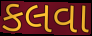
કલવા